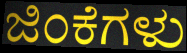
ಜಿಂಕೆಗಳು